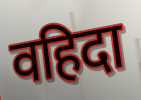
वहिदा